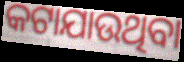
କଟାଯାଉଥିବା